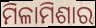
ମିଳାମିଶାର